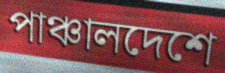
পাঞ্চালদেশে